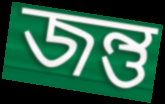
জন্তু